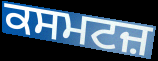
ਕਸਮਟਜ਼